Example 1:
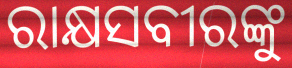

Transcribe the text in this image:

ରାକ୍ଷସବୀରଙ୍କୁ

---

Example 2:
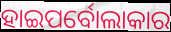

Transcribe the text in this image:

ହାଇପର୍ବୋଲାକାର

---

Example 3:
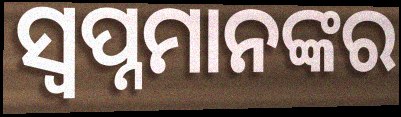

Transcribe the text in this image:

ସ୍ବପ୍ନମାନଙ୍କର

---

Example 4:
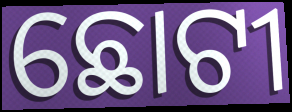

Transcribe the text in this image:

ଛୋଟୀ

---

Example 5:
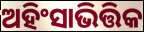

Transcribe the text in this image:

ଅହିଂସାଭିତ୍ତିକ